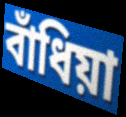
বাঁধিয়া